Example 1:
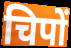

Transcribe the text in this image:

चिपों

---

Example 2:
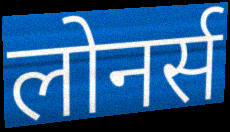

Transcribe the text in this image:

लोनर्स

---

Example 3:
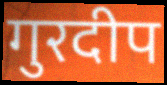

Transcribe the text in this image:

गुरदीप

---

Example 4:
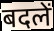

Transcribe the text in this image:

बदलें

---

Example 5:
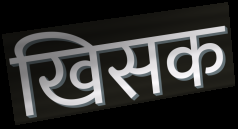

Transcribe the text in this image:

खिसक